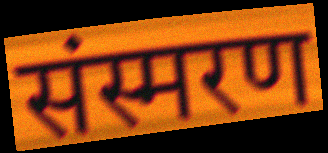
संस्मरण